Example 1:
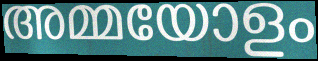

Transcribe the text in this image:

അമ്മയോളം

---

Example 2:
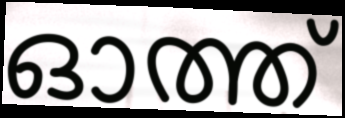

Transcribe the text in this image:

ഓത്ത്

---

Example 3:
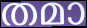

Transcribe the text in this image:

തമാ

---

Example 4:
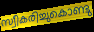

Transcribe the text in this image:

സ്വീകരിച്ചുകൊണ്ടു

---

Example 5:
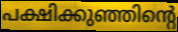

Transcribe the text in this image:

പക്ഷിക്കുഞ്ഞിന്റെ